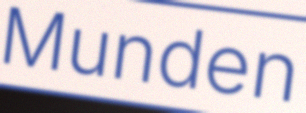
Munden